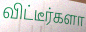
விட்டீர்களா